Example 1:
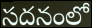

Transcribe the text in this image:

సదనంలో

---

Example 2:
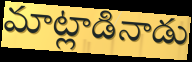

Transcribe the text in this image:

మాట్లాడినాడు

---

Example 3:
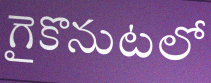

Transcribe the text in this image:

గైకొనుటలో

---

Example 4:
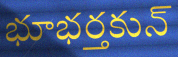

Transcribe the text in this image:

భూభర్తకున్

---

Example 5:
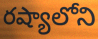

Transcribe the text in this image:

రష్యాలోని